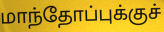
மாந்தோப்புக்குச்